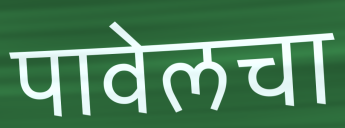
पावेलचा